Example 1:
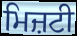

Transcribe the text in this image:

ਮਿਜ਼ਟੀ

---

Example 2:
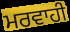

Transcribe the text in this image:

ਮਰਵਾਹੀ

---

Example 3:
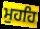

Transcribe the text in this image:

ਮੁਹਹਿ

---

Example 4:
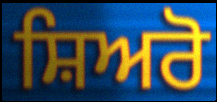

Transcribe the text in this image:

ਸ਼ਿਅਰੋ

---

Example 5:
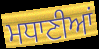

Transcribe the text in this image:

ਮਧਾਣੀਆਂ